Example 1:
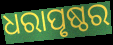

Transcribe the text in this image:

ଧରାପୃଷ୍ଠର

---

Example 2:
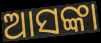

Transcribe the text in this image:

ଆସଙ୍କା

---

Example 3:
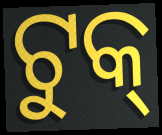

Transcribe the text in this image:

ଟୁକ୍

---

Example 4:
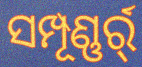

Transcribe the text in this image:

ସମ୍ପୂଣ୍ଣର୍ର୍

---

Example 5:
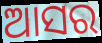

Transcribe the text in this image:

ଆସର